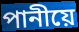
পানীয়ে